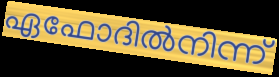
ഏഫോദിൽനിന്ന്